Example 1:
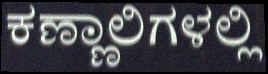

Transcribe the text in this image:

ಕಣ್ಣಾಲಿಗಳಲ್ಲಿ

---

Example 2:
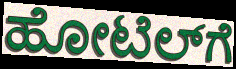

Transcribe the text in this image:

ಹೋಟೆಲ್‌ಗೆ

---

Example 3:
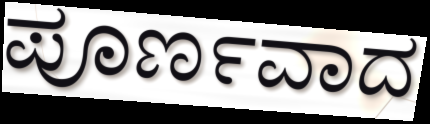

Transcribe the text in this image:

ಪೂರ್ಣವಾದ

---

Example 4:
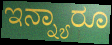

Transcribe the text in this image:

ಇನ್ನ್ಯಾರೂ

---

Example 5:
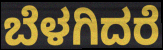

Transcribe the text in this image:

ಬೆಳಗಿದರೆ